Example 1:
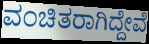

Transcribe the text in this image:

ವಂಚಿತರಾಗಿದ್ದೇವೆ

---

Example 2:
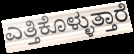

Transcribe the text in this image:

ಎತ್ತಿಕೊಳ್ಳುತ್ತಾರೆ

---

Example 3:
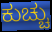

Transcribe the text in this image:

ಕುಚ್ಚು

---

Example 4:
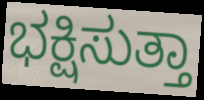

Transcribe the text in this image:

ಭಕ್ಷಿಸುತ್ತಾ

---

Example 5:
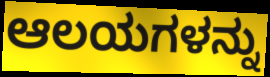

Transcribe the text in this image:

ಆಲಯಗಳನ್ನು